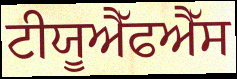
ਟੀਯੂਐੱਫਐੱਸ